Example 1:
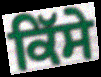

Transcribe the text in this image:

ਕਿੱਸੇ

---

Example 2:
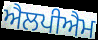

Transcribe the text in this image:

ਐਲਪੀਐਮ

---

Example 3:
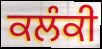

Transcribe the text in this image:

ਕਲੰਕੀ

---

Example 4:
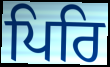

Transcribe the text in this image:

ਪਿਰਿ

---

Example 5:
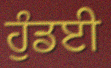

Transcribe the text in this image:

ਹੁੰਡਈ